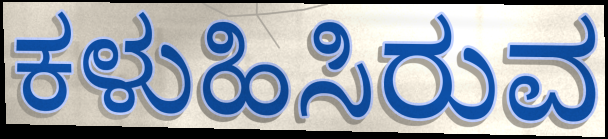
ಕಳುಹಿಸಿರುವ